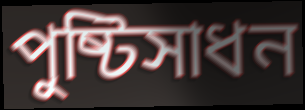
পুষ্টিসাধন